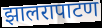
झालरापाटण